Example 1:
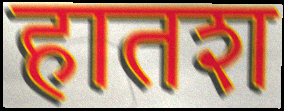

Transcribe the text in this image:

हातश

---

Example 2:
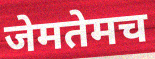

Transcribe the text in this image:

जेमतेमच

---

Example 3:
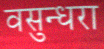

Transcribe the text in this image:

वसुन्धरा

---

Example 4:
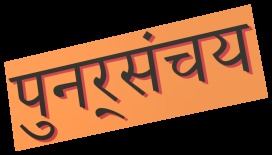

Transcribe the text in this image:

पुनर्संचय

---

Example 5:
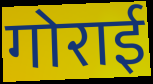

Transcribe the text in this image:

गोराई